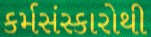
કર્મસંસ્કારોથી